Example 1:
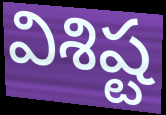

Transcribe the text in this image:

విశిష్ట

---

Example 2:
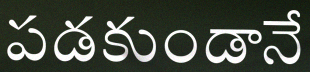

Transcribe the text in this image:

పడకుండానే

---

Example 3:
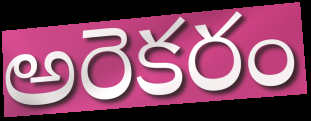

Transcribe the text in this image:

అరెకరం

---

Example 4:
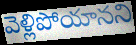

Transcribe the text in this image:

వెళ్లిపోయానని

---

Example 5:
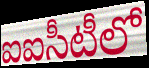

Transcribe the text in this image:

ఐఐసీటీలో